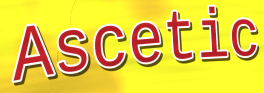
Ascetic